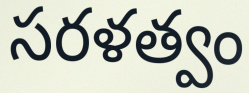
సరళత్వం